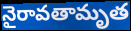
నైరావతామృత